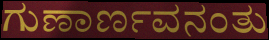
ಗುಣಾರ್ಣವನಂತು